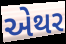
એથર